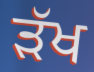
ੜੱਖ